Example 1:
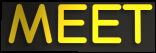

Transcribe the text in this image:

MEET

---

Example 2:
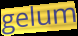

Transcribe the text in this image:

gelum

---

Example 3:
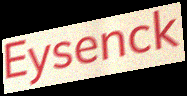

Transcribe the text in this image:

Eysenck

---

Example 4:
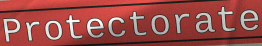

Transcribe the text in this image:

Protectorate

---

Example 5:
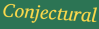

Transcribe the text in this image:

Conjectural